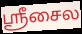
ஸ்ரீசைல